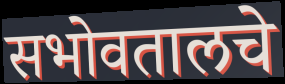
सभोवतालचे